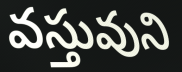
వస్తువుని